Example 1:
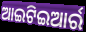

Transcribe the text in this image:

ଆଇଟିଇଆର୍ର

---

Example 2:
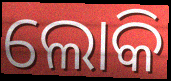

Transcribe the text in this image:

ଲୋକି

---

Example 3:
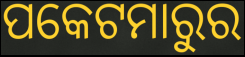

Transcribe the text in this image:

ପକେଟମାରୁର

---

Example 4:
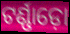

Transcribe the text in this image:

ଟର୍ଣ୍ଣାଡ଼ୋ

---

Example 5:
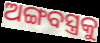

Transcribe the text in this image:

ଅଙ୍ଗବସ୍ତ୍ରକୁ